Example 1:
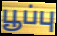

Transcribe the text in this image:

பூப்பு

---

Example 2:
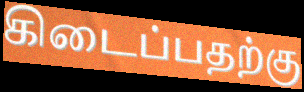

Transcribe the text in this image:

கிடைப்பதற்கு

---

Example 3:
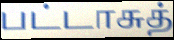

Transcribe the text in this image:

பட்டாசுத்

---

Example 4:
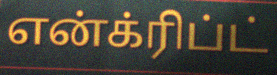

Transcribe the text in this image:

என்க்ரிப்ட்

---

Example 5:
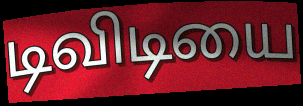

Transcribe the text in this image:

டிவிடியை